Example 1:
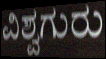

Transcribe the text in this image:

ವಿಶ್ವಗುರು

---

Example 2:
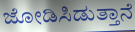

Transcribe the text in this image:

ಜೋಡಿಸಿಡುತ್ತಾನೆ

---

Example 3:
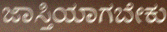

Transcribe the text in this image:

ಜಾಸ್ತಿಯಾಗಬೇಕು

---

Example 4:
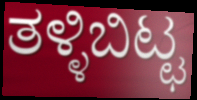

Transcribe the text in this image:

ತಳ್ಳಿಬಿಟ್ಟ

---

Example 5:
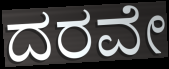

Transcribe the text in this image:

ದರವೇ